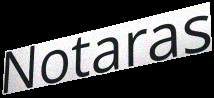
Notaras